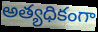
అత్యధికంగా